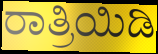
ರಾತ್ರಿಯಿಡಿ